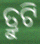
ତ୍ରୁଟି